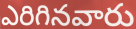
ఎరిగినవారు